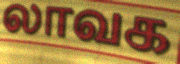
லாவக